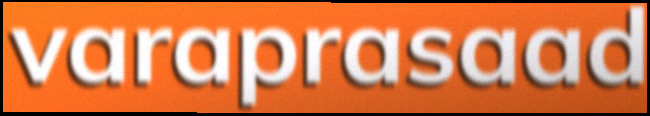
varaprasaad